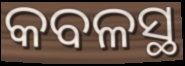
କବଳସ୍ଥ